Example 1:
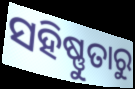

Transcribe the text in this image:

ସହିଷ୍ଣୁତାରୁ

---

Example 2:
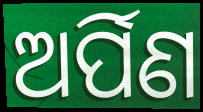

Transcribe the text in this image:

ଅର୍ପିଣ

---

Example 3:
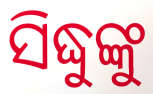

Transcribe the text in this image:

ସିଦ୍ଧୁଙ୍କୁ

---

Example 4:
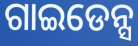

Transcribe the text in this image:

ଗାଇଡେନ୍ସ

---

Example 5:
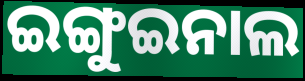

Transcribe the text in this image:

ଇଙ୍ଗୁଇନାଲ